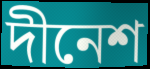
দীনেশ